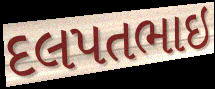
દલપતભાઇ